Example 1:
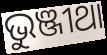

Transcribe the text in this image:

ଭୁଞ୍ଜୀଥା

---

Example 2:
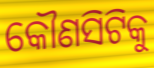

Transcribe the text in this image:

କୌଣସିଟିକୁ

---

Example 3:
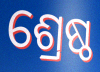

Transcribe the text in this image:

ଶ୍ରେଷ୍ଠ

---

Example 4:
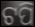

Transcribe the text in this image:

ଟପି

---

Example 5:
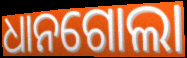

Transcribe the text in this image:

ଧାନଗୋଲା